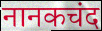
नानकचंद